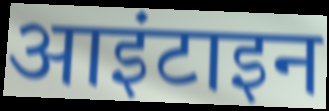
आइंटाइन